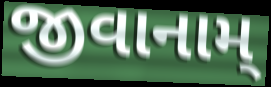
જીવાનામ્